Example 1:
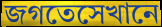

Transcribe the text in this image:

জগতেসেখানে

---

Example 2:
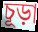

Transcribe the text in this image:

চূড়া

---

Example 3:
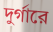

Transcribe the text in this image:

দুর্গারে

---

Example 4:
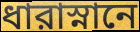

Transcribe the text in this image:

ধারাস্নানে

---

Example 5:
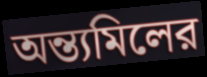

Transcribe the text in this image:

অন্ত্যমিলের